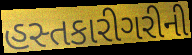
હસ્તકારીગરીની